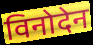
विनोदेन